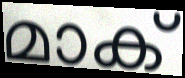
മാക്